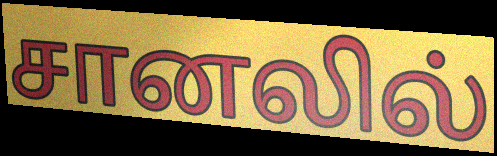
சானலில்